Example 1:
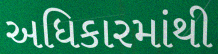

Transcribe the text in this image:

અધિકારમાંથી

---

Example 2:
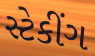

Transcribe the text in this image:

સ્ટેકીંગ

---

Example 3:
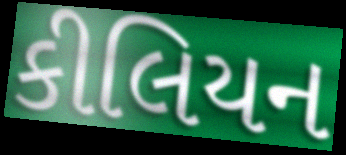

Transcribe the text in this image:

કીલિયન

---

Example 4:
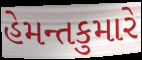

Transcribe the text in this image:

હેમન્તકુમારે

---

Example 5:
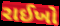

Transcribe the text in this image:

રાઈખો